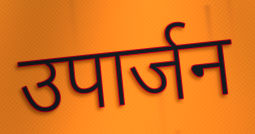
उपार्जन